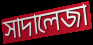
সাদালেজা